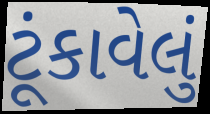
ટૂંકાવેલું